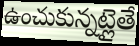
ఉంచుకున్నట్లైతే